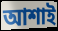
আশাই